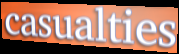
casualties